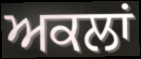
ਅਕਲਾਂ